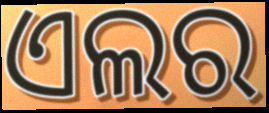
ଏଲର